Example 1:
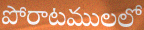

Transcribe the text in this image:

పోరాటములలో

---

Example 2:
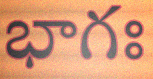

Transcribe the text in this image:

భాగః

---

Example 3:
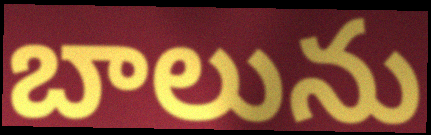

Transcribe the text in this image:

బాలును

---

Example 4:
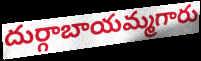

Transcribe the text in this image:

దుర్గాబాయమ్మగారు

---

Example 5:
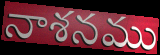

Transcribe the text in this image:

నాశనము